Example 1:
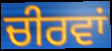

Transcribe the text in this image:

ਚੀਰਵਾਂ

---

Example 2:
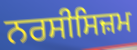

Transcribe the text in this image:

ਨਰਸੀਸਿਜ਼ਮ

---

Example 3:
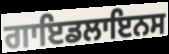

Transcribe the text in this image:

ਗਾਇਡਲਾਇਨਸ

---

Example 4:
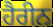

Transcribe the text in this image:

ਹੈਰੀਨ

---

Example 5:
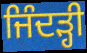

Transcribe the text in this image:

ਜਿੰਦੜ੍ਹੀ